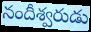
నందీశ్వరుడు